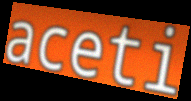
aceti